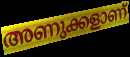
അണുക്കളാണ്